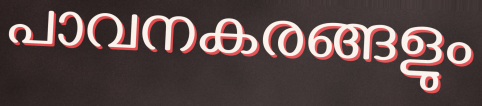
പാവനകരങ്ങളും